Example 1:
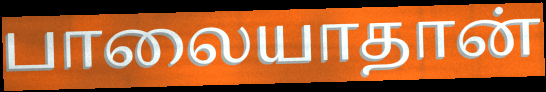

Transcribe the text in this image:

பாலையாதான்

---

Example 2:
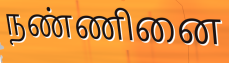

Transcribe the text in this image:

நண்ணினை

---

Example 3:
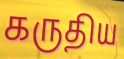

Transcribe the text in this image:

கருதிய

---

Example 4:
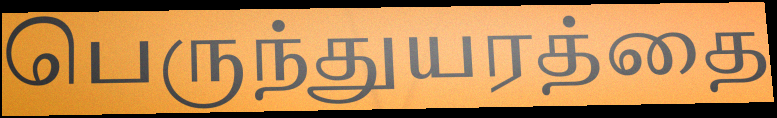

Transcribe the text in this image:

பெருந்துயரத்தை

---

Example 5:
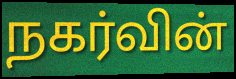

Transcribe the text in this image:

நகர்வின்